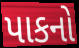
પાકનો